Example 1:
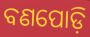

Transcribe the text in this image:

ବଣପୋଡ଼ି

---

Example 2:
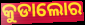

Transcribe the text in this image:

କୁଡାଲୋର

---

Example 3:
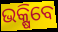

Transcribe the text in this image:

ଭକ୍ଷିବେ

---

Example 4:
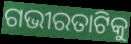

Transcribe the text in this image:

ଗଭୀରତାଟିକୁ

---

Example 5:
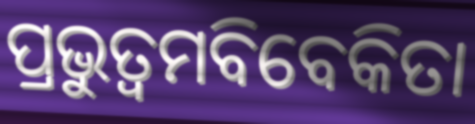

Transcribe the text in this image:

ପ୍ରଭୁତ୍ୱମବିବେକିତା